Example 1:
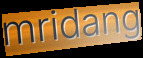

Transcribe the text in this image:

mridang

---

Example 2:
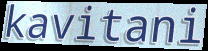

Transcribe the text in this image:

kavitani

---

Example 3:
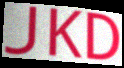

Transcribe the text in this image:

JKD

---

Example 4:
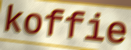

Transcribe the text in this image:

koffie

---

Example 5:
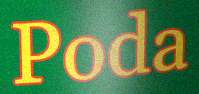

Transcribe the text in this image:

Poda